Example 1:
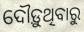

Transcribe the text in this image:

ଦୌଡ଼ୁଥିବାରୁ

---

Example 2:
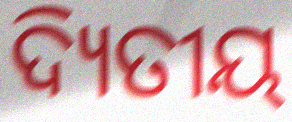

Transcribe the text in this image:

ଦ୍ଯିତୀୟ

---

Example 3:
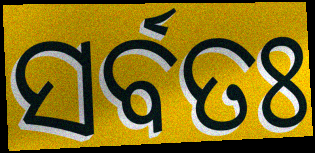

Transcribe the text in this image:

ସର୍ବତଃ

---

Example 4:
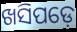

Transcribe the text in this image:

ଖସିପଡ଼େ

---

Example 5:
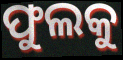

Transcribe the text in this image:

ଫୁଲକୁ